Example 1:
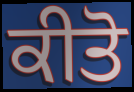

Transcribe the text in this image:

ਕੀਤੋ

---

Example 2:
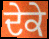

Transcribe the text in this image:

ਦੇਕੇ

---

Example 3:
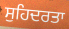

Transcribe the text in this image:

ਸੁਹਿਦਰਤਾ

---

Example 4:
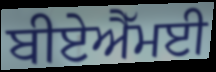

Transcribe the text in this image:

ਬੀਏਐੱਮਈ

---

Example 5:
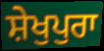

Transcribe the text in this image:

ਸ਼ੇਖੁਪੁਰਾ